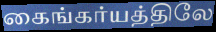
கைங்கர்யத்திலே